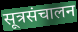
सूत्रसंचालन